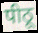
पीठू